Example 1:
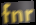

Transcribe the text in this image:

fnr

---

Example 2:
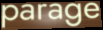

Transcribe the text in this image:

parage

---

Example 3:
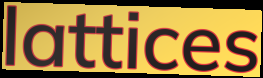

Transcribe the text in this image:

lattices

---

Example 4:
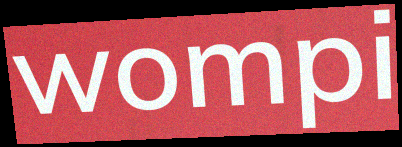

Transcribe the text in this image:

wompi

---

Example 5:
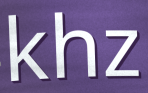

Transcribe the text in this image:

khz